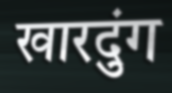
खारदुंग